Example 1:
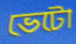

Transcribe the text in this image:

ভেটো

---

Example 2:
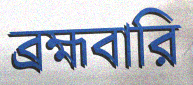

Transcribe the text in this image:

ব্রহ্মবারি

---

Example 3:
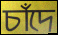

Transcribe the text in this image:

চাঁদে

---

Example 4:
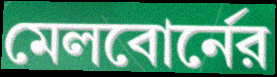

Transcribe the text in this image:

মেলবোর্নের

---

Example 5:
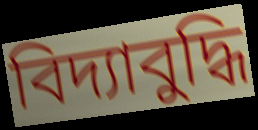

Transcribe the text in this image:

বিদ্যাবুদ্ধি